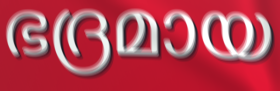
ഭദ്രമായ